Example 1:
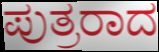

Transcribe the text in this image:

ಪುತ್ರರಾದ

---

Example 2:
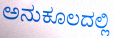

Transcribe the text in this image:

ಅನುಕೂಲದಲ್ಲಿ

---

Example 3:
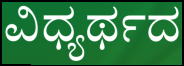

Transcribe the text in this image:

ವಿಧ್ಯರ್ಥದ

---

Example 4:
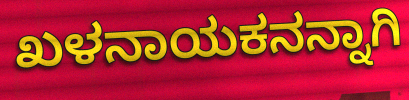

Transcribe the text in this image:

ಖಳನಾಯಕನನ್ನಾಗಿ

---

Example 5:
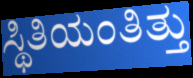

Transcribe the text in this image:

ಸ್ಥಿತಿಯಂತಿತ್ತು